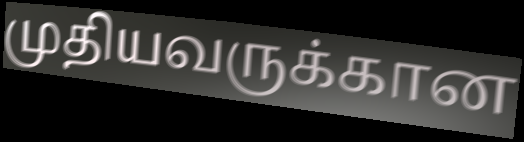
முதியவருக்கான